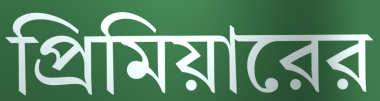
প্রিমিয়ারের